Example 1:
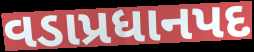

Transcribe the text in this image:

વડાપ્રધાનપદ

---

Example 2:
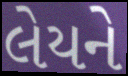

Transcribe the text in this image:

લેયને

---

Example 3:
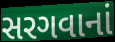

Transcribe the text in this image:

સરગવાનાં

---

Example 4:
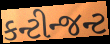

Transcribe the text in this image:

કન્ટીન્જન્ટ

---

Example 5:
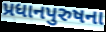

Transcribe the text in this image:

પ્રધાનપુરુષના